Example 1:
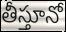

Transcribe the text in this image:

తీస్తూనో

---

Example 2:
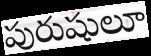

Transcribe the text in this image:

పురుషులూ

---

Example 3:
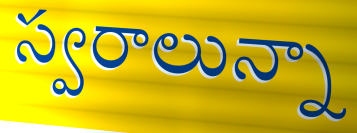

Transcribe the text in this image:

స్వరాలున్నా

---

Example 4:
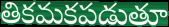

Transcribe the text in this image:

తికమకపడుతూ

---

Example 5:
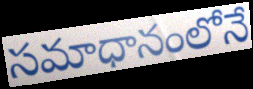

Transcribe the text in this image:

సమాధానంలోనే